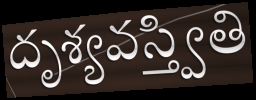
దృశ్యవస్త్వితి